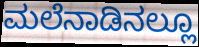
ಮಲೆನಾಡಿನಲ್ಲೂ